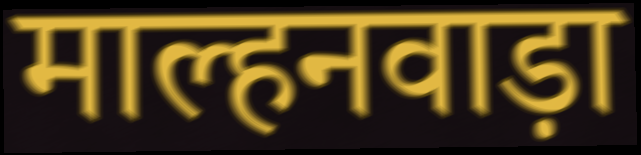
माल्हनवाड़ा